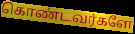
கொண்டவர்களே